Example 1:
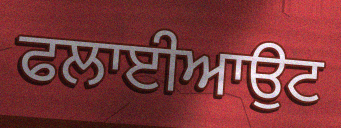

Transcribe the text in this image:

ਫਲਾਈਆਉਟ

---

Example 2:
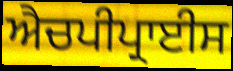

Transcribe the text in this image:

ਐਚਪੀਪ੍ਰਾਈਸ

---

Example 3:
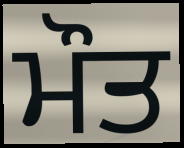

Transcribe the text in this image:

ਮੌਤ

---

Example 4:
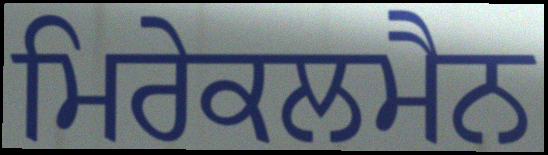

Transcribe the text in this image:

ਮਿਰੇਕਲਮੈਨ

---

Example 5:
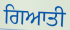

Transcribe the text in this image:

ਗਿਆਤੀ